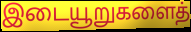
இடையூறுகளைத்